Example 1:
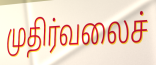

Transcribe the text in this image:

முதிர்வலைச்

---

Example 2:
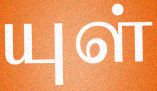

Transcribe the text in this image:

யுள்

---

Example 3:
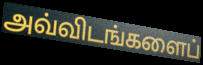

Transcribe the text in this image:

அவ்விடங்களைப்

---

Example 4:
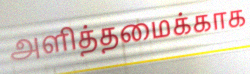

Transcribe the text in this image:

அளித்தமைக்காக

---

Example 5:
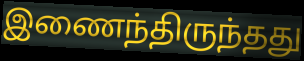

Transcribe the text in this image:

இணைந்திருந்தது